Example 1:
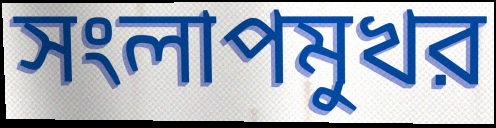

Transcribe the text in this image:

সংলাপমুখর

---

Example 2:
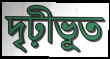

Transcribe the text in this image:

দৃঢ়ীভূত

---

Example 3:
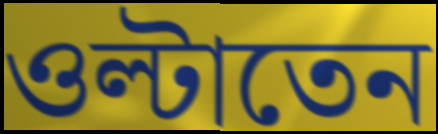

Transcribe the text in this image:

ওল্টাতেন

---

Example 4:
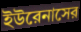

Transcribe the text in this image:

ইউরেনাসের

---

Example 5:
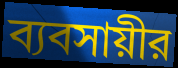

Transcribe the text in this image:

ব্যবসায়ীর